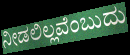
ನೀಡಲಿಲ್ಲವೆಂಬುದು